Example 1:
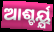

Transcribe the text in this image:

ଆଶ୍ଚର୍ୟ୍ଯ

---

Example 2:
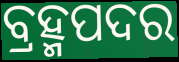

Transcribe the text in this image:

ବ୍ରହ୍ମପଦର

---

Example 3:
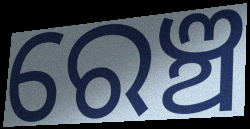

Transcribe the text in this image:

ରେଞ୍ଚ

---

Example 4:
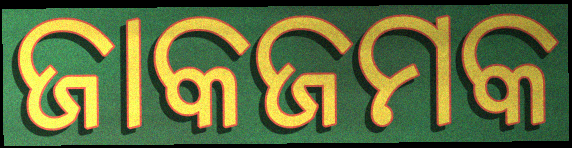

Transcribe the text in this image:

ଜାକଜମକ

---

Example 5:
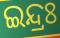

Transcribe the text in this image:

ଇନ୍ଦ୍ରଃ